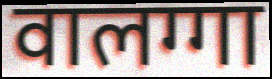
वालग्गा